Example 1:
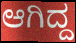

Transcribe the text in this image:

ಆಗಿದ್ದ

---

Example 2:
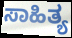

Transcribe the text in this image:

ಸಾಹಿತ್ಯ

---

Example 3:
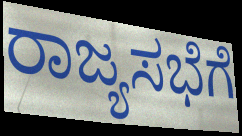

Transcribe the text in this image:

ರಾಜ್ಯಸಭೆಗೆ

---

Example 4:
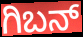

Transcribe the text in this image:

ಗಿಬನ್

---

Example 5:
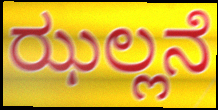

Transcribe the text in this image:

ಝಲ್ಲನೆ